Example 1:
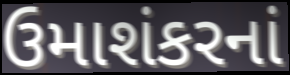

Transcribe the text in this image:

ઉમાશંકરનાં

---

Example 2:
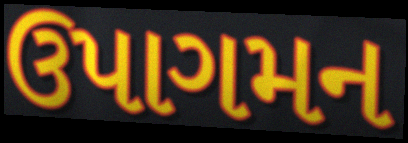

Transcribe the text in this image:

ઉપાગમન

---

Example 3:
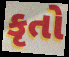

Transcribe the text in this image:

કૃતો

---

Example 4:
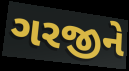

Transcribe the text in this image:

ગરજીને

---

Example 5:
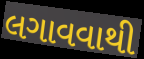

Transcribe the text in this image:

લગાવવાથી